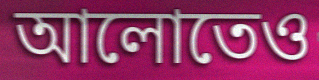
আলোতেও